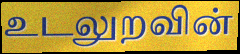
உடலுறவின்